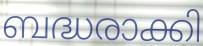
ബദ്ധരാക്കി